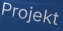
Projekt